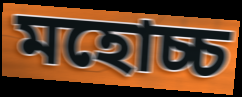
মহোচ্চ